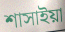
শাসাইয়া